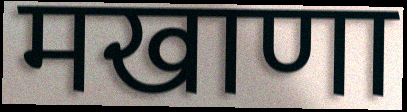
मखाणा